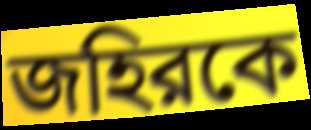
জহিরকে